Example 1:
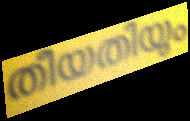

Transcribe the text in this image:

തീയതിയും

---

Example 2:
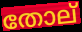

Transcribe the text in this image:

തോല്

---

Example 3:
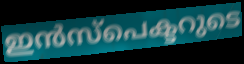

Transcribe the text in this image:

ഇൻസ്പെക്ടറുടെ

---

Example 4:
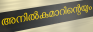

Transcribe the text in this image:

അനിൽകുമാറിന്റെയും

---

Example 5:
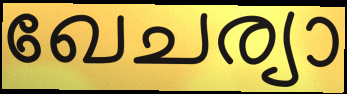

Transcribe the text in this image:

ഖേചര്യാ